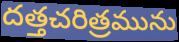
దత్తచరిత్రమును